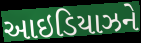
આઇડિયાઝને